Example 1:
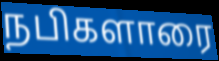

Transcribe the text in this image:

நபிகளாரை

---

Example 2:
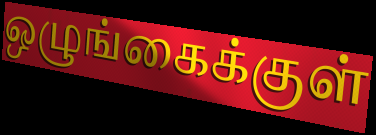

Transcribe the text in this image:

ஒழுங்கைக்குள்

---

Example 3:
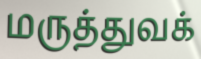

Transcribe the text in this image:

மருத்துவக்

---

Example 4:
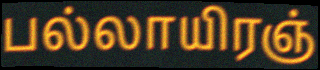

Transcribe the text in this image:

பல்லாயிரஞ்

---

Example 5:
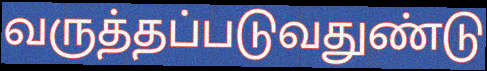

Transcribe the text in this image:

வருத்தப்படுவதுண்டு